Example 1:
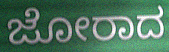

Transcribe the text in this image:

ಜೋರಾದ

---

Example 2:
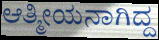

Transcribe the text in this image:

ಆತ್ಮೀಯನಾಗಿದ್ದ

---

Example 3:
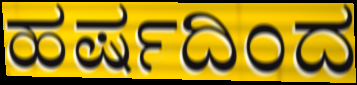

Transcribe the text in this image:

ಹರ್ಷದಿಂದ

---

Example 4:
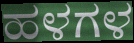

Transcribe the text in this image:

ಹಳಗಳ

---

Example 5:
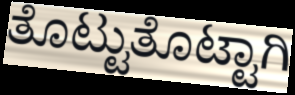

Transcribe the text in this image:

ತೊಟ್ಟುತೊಟ್ಟಾಗಿ